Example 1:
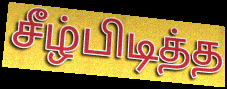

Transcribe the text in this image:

சீழ்பிடித்த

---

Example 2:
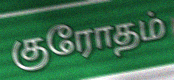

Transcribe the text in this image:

குரோதம்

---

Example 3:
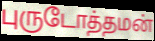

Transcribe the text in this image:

புருடோத்தமன்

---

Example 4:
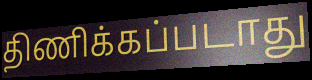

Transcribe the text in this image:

திணிக்கப்படாது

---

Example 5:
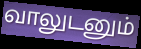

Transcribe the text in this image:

வாலுடனும்